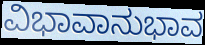
ವಿಭಾವಾನುಭಾವ